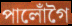
পালোঁগৈ